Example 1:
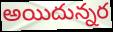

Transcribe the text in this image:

అయిదున్నర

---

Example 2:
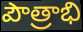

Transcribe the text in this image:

పౌత్రాభి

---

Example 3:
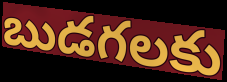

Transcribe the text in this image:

బుడగలకు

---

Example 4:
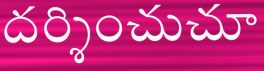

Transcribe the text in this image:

దర్శించుచూ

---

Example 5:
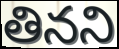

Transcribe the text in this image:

తినని